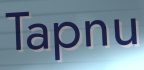
Tapnu